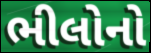
ભીલોનો